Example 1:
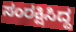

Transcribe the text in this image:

ಸಂರಕ್ಷಿಸಿದ್ದ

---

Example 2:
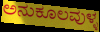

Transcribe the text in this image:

ಅನುಕೂಲವುಳ್ಳ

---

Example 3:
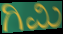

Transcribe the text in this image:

ಗಿಮಿ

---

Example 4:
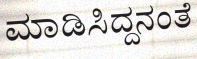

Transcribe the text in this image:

ಮಾಡಿಸಿದ್ದನಂತೆ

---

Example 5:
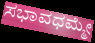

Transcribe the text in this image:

ಸಭಾವಧಮ್ಮೇ